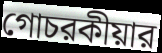
গোচরকীয়ার